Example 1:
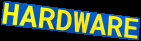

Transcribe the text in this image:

HARDWARE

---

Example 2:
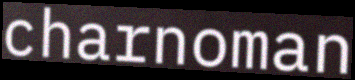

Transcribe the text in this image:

charnoman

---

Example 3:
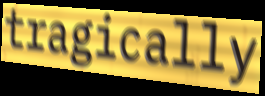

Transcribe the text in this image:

tragically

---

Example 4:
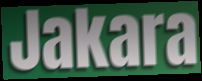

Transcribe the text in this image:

Jakara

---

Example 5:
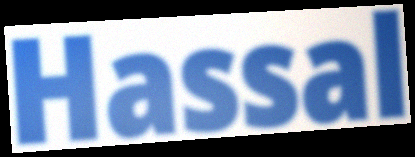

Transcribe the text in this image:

Hassal